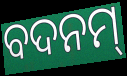
ବଦନମ୍